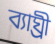
ব্যাঘ্ৰী